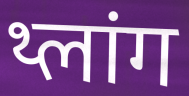
थ्लांग